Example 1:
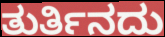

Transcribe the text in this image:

ತುರ್ತಿನದು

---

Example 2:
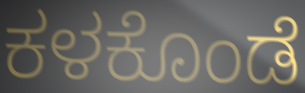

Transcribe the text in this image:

ಕಳಕೊಂಡೆ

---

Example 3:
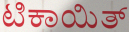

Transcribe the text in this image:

ಟಿಕಾಯಿತ್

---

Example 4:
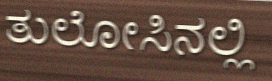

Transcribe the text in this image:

ತುಲೋಸಿನಲ್ಲಿ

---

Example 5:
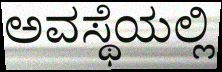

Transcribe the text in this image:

ಅವಸ್ಥೆಯಲ್ಲಿ